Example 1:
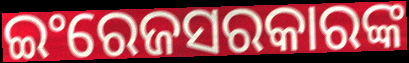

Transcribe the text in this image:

ଇଂରେଜସରକାରଙ୍କ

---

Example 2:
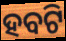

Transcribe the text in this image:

ହବଟି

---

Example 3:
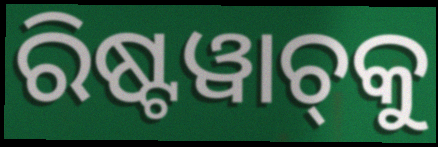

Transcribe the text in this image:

ରିଷ୍ଟୱାଚ୍‌କୁ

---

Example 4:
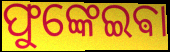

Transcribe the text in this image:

ଫୁଙ୍କେଇଵା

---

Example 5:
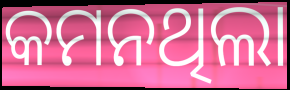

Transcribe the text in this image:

କମନଥିଲା